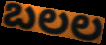
బలల